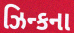
ઝિન્કના